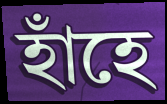
হাঁহে